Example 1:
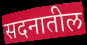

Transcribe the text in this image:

सदनातील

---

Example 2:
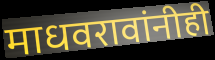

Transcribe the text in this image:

माधवरावांनीही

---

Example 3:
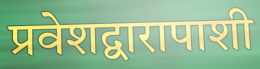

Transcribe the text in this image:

प्रवेशद्वारापाशी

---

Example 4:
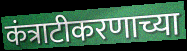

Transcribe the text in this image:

कंत्राटीकरणाच्या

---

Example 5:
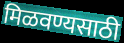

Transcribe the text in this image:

मिळवण्यसाठी